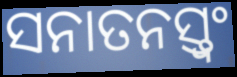
ସନାତନସ୍ତ୍ୱଂ